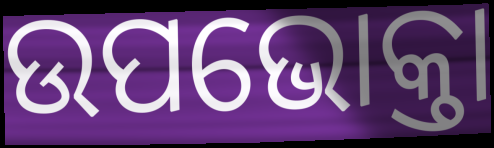
ଉପଭୋକ୍ତା